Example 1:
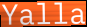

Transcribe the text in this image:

Yalla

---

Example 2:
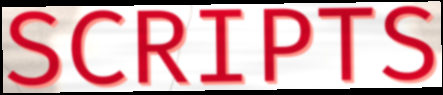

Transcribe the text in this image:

SCRIPTS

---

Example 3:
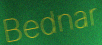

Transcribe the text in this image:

Bednar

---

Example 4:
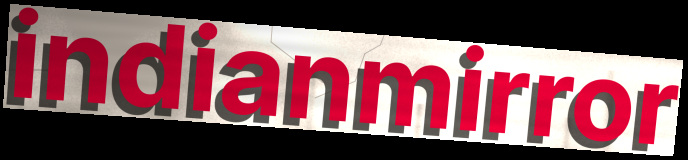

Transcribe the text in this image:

indianmirror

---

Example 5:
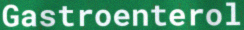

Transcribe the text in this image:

Gastroenterol